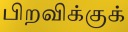
பிறவிக்குக்